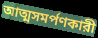
আত্মসমর্পণকারী